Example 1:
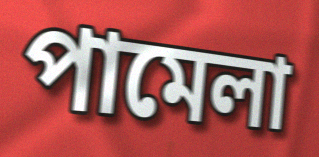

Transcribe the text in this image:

পামেলা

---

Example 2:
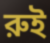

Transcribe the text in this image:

রুই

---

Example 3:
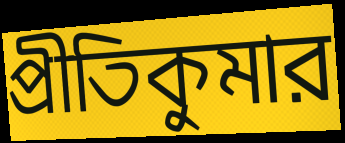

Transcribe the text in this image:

প্রীতিকুমার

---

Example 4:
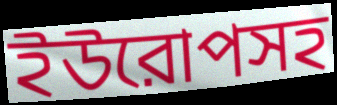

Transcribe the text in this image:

ইউরোপসহ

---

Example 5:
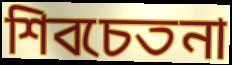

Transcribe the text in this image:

শিবচেতনা